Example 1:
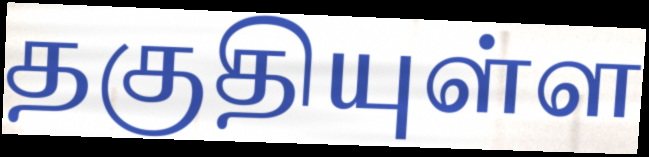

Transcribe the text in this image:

தகுதியுள்ள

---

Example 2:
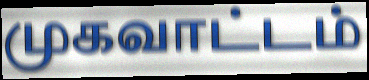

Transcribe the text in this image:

முகவாட்டம்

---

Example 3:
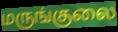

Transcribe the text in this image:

மருங்குலை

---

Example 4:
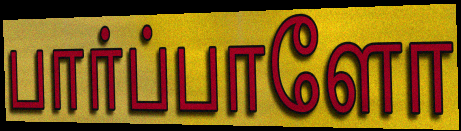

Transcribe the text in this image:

பார்ப்பாளோ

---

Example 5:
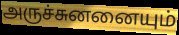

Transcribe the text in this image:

அருச்சுனனையும்